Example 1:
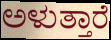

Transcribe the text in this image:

ಅಳುತ್ತಾರೆ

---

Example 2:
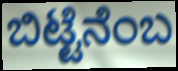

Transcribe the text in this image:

ಬಿಟ್ಟೆನೆಂಬ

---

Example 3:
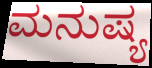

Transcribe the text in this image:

ಮನುಷ್ಯ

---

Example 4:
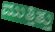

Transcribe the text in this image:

ಮುತ್ತಿತ್ತು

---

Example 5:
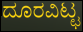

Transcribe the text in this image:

ದೂರವಿಟ್ಟ